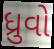
ધ્રુવો